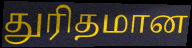
துரிதமான